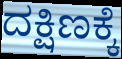
ದಕ್ಷಿಣಕ್ಕೆ